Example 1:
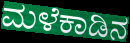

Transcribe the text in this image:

ಮಳೆಕಾಡಿನ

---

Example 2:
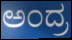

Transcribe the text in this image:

ಅಂದ್ರ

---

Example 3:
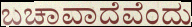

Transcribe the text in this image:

ಬಚಾವಾದೆವೆಂದು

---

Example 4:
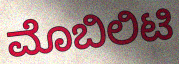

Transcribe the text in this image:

ಮೊಬಿಲಿಟಿ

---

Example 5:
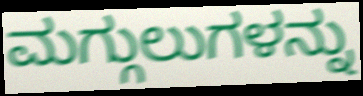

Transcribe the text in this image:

ಮಗ್ಗುಲುಗಳನ್ನು